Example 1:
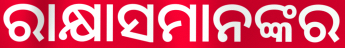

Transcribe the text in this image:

ରାକ୍ଷାସମାନଙ୍କର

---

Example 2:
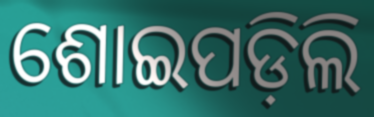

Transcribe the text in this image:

ଶୋଇପଡ଼ିଲି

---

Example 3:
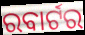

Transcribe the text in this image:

ରବାର୍ଟର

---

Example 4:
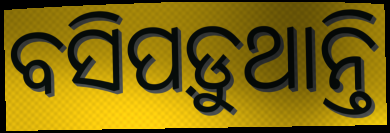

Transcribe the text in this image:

ବସିପଡ଼ୁଥାନ୍ତି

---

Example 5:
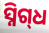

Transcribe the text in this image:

ସ୍ନିଗ୍‌ଧ